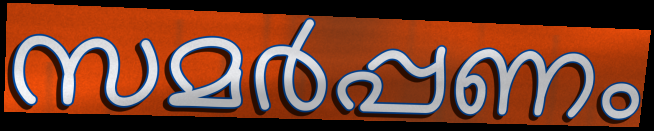
സമർപ്പണം